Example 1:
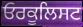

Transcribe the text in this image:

ਓਰਕੂਲਿਸਟ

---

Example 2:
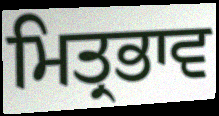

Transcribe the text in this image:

ਮਿਤ੍ਰਭਾਵ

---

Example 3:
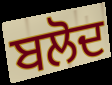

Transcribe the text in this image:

ਬਲੋਦ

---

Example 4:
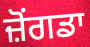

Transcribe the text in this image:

ਜ਼ੋਂਗਡਾ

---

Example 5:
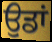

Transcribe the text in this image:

ਉਡਾਂ